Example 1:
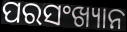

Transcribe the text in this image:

ପରସଂଖ୍ୟାନ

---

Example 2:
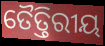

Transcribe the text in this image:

ତୈତ୍ତିରୀୟ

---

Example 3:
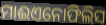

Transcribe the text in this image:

ମାଈଏନୋଫିଲିସ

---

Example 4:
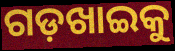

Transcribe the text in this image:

ଗଡ଼ଖାଇକୁ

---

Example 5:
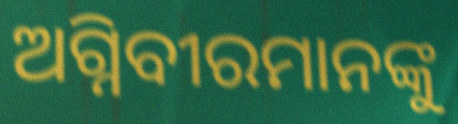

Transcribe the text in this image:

ଅଗ୍ନିବୀରମାନଙ୍କୁ